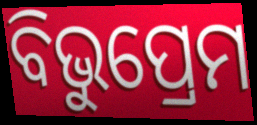
ବିଭୁପ୍ରେମ